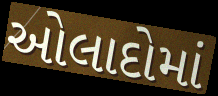
ઓલાદોમાં